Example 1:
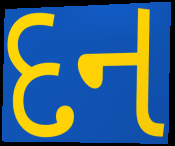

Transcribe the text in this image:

દન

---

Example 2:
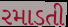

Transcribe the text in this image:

રમાડતી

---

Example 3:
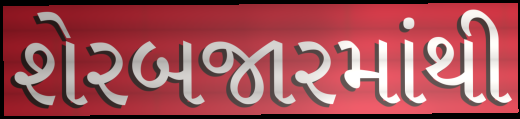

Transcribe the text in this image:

શેરબજારમાંથી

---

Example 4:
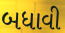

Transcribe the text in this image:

બધાવી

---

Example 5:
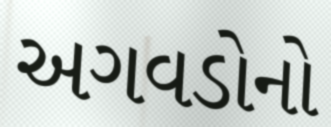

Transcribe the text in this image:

અગવડોનો